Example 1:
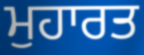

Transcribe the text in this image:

ਮੁਹਾਰਤ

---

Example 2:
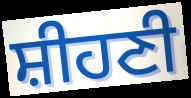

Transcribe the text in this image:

ਸ਼ੀਹਣੀ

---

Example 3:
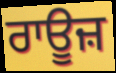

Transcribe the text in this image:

ਰਾਊਜ਼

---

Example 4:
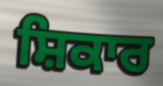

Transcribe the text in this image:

ਸ਼ਿਕਾਰ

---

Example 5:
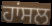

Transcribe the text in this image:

ਹਾਂਸਲ